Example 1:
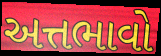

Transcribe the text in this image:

અત્તભાવો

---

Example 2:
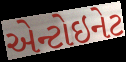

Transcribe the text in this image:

એન્ટોઇનેટ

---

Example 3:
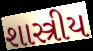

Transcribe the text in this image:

શાસ્ત્રીય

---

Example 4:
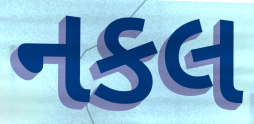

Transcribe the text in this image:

નકલ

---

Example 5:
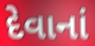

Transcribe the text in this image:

દેવાનાં